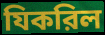
যিকরিল